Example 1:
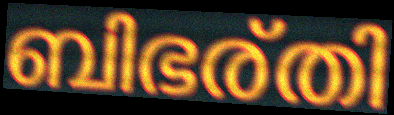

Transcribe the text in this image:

ബിഭര്തി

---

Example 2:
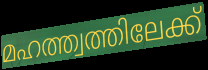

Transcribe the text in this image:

മഹത്ത്വത്തിലേക്ക്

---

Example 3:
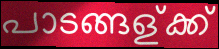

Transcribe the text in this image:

പാടങ്ങള്ക്ക്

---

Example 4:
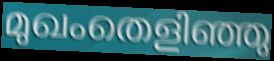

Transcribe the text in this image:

മുഖംതെളിഞ്ഞു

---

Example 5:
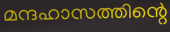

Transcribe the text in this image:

മന്ദഹാസത്തിന്റെ